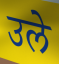
उले